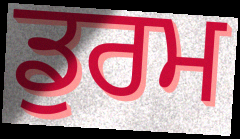
ਡੁਰਮ